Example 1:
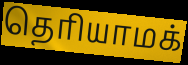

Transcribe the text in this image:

தெரியாமக்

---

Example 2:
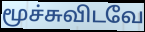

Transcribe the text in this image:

மூச்சுவிடவே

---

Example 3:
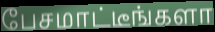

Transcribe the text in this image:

பேசமாட்டீங்களா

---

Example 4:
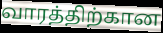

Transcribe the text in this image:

வாரத்திற்கான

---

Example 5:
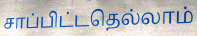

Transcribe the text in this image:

சாப்பிட்டதெல்லாம்